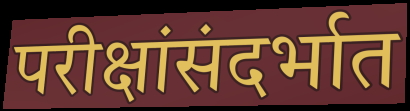
परीक्षांसंदर्भात